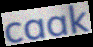
caak